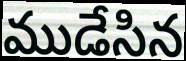
ముడేసిన